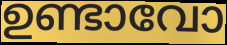
ഉണ്ടാവോ